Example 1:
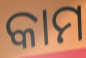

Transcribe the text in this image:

କାମ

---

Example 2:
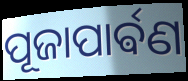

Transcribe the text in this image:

ପୂଜାପାର୍ଵଣ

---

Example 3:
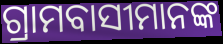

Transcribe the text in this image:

ଗ୍ରାମବାସୀମାନଙ୍କ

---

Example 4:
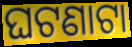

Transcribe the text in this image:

ଘଟଣାଟା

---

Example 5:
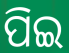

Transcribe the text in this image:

ପିଇ